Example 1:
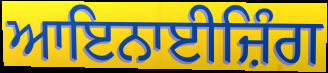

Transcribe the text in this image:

ਆਇਨਾਈਜ਼ਿੰਗ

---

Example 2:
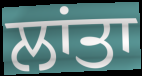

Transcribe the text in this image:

ਲਾਂਤਾ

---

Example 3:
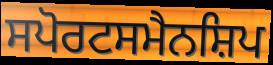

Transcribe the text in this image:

ਸਪੋਰਟਸਮੈਨਸ਼ਿਪ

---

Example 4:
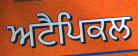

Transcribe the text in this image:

ਅਟੈਪਿਕਲ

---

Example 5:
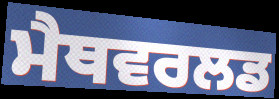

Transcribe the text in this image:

ਮੈਥਵਰਲਡ